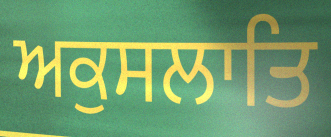
ਅਕੁਸਲਾਤਿ